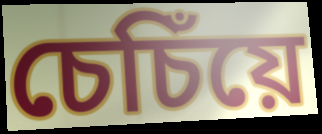
চেচিঁয়ে